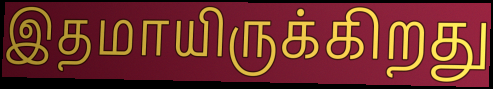
இதமாயிருக்கிறது